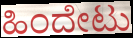
ಹಿಂದೇಟು